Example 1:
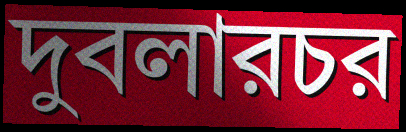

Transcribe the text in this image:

দুবলারচর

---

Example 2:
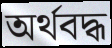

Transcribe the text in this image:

অর্থবদ্ধ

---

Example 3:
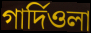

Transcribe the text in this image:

গার্দিওলা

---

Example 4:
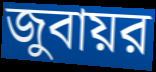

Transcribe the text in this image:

জুবায়র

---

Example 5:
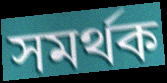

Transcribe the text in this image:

সমর্থক